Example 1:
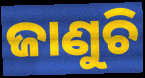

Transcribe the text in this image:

ଜାଣୁଚି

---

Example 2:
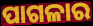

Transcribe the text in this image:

ପାଗଳାର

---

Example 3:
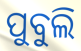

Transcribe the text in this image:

ପୁବୁଲି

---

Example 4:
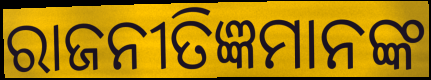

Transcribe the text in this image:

ରାଜନୀତିଜ୍ଞମାନଙ୍କ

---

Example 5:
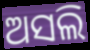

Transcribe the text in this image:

ଅସଲି